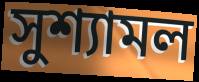
সুশ্যামল